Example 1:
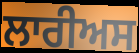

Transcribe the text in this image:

ਲਾਰੀਅਸ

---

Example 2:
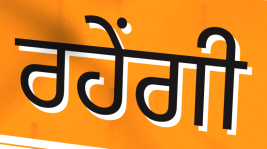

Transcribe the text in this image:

ਰਹੇਂਗੀ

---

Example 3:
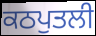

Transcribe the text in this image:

ਕਠਪੁਤਲੀ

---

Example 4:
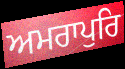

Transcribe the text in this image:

ਅਮਰਾਪੁਰਿ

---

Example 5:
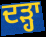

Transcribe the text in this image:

ਦੜ੍ਹਾ